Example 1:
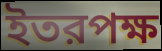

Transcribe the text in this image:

ইতরপক্ষ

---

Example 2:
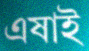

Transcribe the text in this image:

এষাই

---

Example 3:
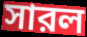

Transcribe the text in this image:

সারল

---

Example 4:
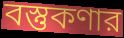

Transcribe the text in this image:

বস্তুকণার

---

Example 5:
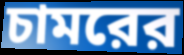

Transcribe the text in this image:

চামরের